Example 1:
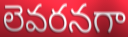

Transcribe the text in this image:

లెవరనగా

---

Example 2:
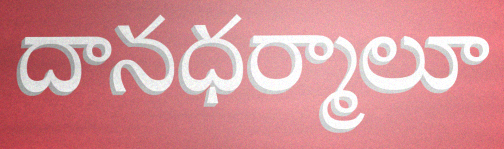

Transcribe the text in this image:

దానధర్మాలూ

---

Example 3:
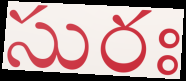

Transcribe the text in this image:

సురః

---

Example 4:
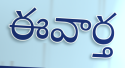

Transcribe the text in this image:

ఈవార్త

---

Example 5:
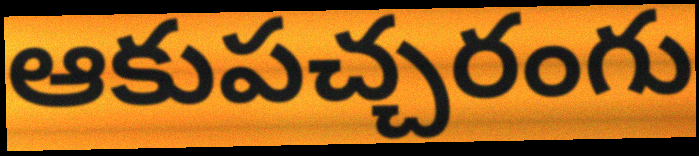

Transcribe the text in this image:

ఆకుపచ్చరంగు